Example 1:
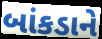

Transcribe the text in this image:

બાંકડાને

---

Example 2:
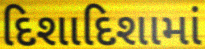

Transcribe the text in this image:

દિશાદિશામાં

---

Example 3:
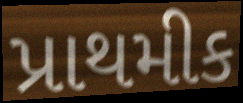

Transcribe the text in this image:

પ્રાથમીક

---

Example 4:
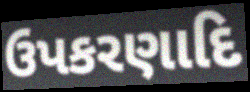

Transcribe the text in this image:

ઉપકરણાદિ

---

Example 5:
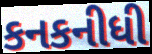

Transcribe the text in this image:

કનકનીધી